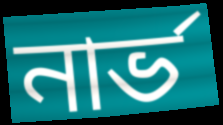
নার্ভ